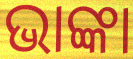
ଭାଙ୍କା